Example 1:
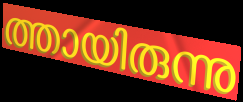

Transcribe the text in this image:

ത്തായിരുന്നു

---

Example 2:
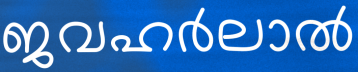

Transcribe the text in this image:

ജവഹർലാൽ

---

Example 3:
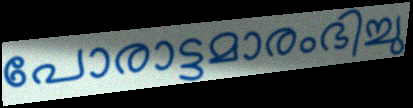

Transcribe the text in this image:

പോരാട്ടമാരംഭിച്ചു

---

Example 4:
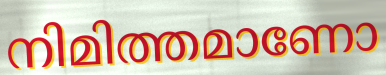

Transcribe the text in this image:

നിമിത്തമാണോ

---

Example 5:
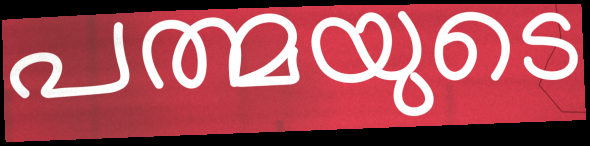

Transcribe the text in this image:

പത്മയുടെ